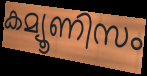
കമ്യൂണിസം